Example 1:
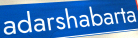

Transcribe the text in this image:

adarshabarta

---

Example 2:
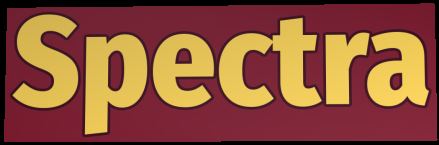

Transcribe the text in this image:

Spectra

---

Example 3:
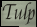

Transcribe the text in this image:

Tulp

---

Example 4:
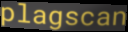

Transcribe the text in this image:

plagscan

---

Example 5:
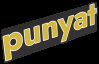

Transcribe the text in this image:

punyat